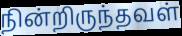
நின்றிருந்தவள்